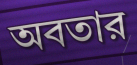
অবতার